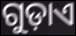
ଗୁଡ଼ାଏ